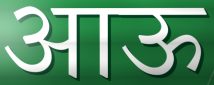
आऊ